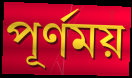
পূর্ণময়